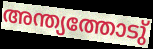
അന്ത്യത്തോടു്